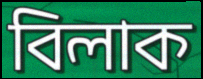
বিলাক